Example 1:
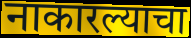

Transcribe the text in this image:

नाकारल्याचा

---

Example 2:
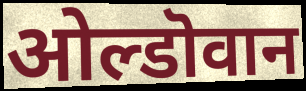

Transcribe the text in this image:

ओल्डॊवान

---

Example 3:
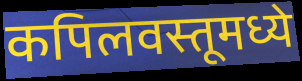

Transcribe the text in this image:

कपिलवस्तूमध्ये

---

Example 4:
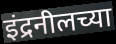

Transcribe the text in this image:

इंद्रनीलच्या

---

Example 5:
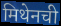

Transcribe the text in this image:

मिथेनची